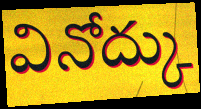
వినోద్కు